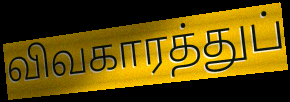
விவகாரத்துப்